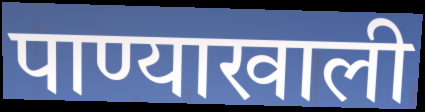
पाण्‍याखाली